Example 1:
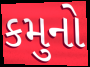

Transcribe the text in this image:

કમુનો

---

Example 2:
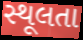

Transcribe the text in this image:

સ્થૂલતા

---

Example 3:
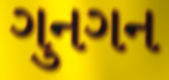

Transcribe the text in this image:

ગુનગન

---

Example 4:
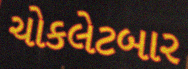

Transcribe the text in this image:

ચોકલેટબાર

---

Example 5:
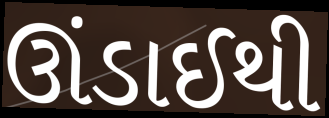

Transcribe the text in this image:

ઊંડાઈથી